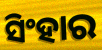
ସିଂହାର